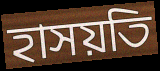
হাসয়তি